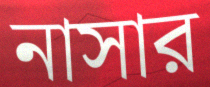
নাসার